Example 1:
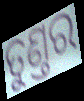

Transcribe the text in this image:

ତୁଣ୍ତର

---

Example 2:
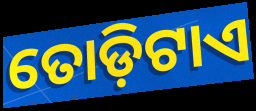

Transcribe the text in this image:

ତୋଡ଼ିଟାଏ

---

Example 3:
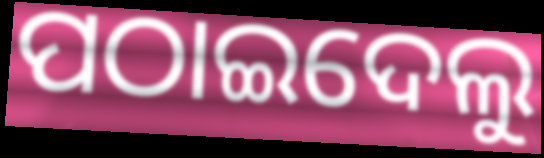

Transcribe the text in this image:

ପଠାଇଦେଲୁ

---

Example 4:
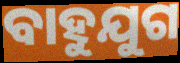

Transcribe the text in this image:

ବାହୁଯୁଗ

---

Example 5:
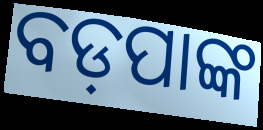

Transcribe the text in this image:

ବଡ଼ପାଙ୍କ